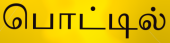
பொட்டில்